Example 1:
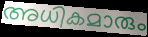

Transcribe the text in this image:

അധികമാരും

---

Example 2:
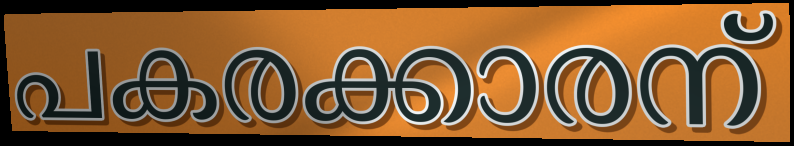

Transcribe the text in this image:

പകരക്കാരന്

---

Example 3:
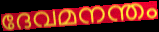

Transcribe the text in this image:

ദേവമനന്തം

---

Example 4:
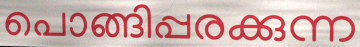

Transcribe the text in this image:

പൊങ്ങിപ്പരക്കുന്ന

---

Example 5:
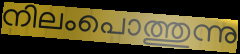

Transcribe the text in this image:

നിലംപൊത്തുന്നു